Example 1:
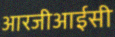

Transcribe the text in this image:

आरजीआईसी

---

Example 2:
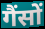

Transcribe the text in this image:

गैंसों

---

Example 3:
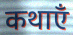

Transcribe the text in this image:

कथाएँ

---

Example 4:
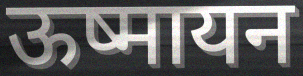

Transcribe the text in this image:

ऊष्मायन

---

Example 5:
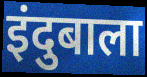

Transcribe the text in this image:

इंदुबाला